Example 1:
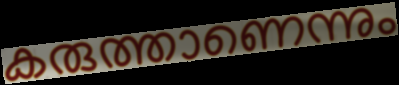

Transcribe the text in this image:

കരുത്താണെന്നും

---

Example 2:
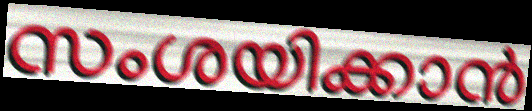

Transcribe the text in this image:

സംശയിക്കാൻ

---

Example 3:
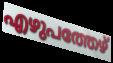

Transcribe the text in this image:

എഴുപത്തേഴ്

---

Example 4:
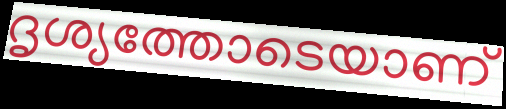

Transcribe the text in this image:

ദൃശ്യത്തോടെയാണ്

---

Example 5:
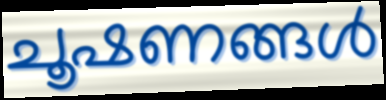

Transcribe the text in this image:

ചൂഷണങ്ങൾ